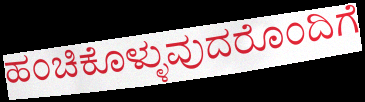
ಹಂಚಿಕೊಳ್ಳುವುದರೊಂದಿಗೆ